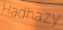
Hadhazy